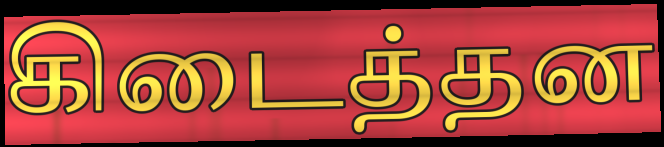
கிடைத்தன